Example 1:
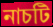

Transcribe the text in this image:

নাচটি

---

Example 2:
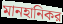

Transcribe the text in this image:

মানহানিকর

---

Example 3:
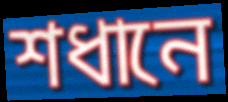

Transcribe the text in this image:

শধানে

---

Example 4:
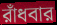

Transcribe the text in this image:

রাঁধবার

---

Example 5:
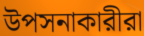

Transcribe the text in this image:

উপসনাকারীরা